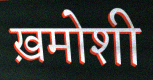
ख़मोशी